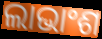
ଲାଭାଂଶ